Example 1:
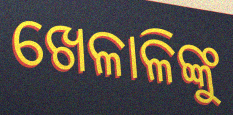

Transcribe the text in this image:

ଖେଳାଳିଙ୍କୁ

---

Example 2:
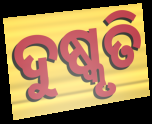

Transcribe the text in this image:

ଦୁଷ୍କୃତି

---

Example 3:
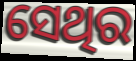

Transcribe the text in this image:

ସେଥିର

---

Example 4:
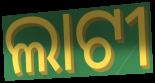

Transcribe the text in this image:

ଲାଟୀ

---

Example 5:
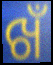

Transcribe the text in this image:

ଖଁ